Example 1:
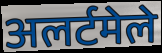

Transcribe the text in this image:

अलर्टमेले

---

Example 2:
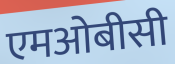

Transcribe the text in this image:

एमओबीसी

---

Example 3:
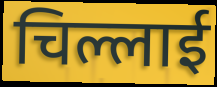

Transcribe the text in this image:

चिल्लाई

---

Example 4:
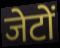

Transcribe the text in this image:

जेटों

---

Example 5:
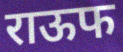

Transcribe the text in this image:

राऊफ